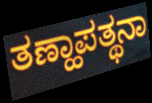
ತಣ್ಹಾಪತ್ಥನಾ